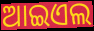
ଆଇଏଲ